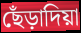
ছেঁড়াদিয়া